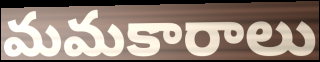
మమకారాలు